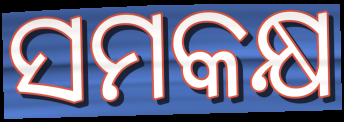
ସମକକ୍ଷ